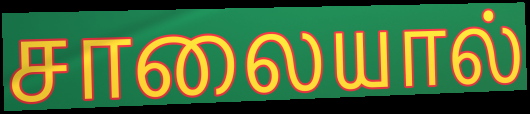
சாலையால்